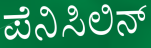
ಪೆನಿಸಿಲಿನ್